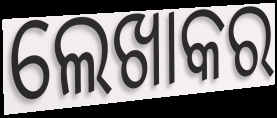
ଲେଖାକର